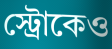
স্ট্রোকেও